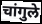
चांगुले